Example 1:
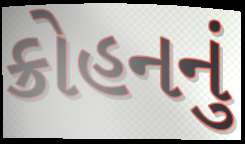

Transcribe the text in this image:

ક્રોહનનું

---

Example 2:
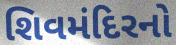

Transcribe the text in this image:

શિવમંદિરનો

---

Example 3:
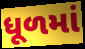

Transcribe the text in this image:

ધૂળમાં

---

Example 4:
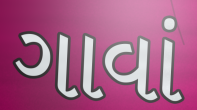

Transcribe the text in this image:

ગાવાં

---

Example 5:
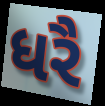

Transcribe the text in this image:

ધરૈ